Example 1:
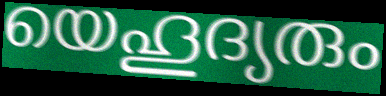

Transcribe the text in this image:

യെഹൂദ്യരും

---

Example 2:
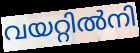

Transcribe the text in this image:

വയറ്റിൽനി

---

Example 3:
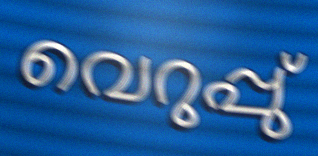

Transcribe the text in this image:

വെറുപ്പു്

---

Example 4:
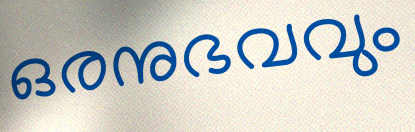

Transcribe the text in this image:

ഒരനുഭവവും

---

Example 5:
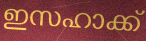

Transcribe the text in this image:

ഇസഹാക്ക്